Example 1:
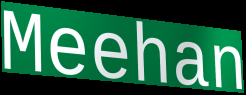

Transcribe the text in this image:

Meehan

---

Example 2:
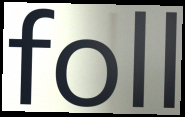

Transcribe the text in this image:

foll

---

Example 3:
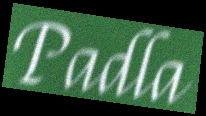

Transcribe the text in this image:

Padla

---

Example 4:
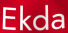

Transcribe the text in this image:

Ekda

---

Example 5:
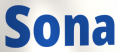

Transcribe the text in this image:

Sona